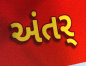
અંતર્